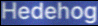
Hedehog